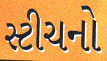
સ્ટીચનો